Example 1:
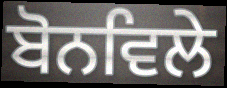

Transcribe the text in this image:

ਬੋਨਵਿਲੇ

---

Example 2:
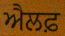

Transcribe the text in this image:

ਐਲਫ਼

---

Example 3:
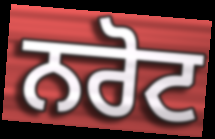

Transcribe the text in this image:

ਨਰੋਟ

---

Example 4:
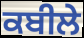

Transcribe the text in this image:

ਕਬੀਲੇ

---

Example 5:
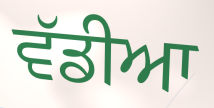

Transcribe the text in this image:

ਵੱਡੀਆ